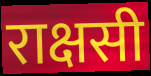
राक्षसी